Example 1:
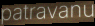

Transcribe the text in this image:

patravanu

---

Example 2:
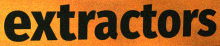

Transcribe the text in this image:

extractors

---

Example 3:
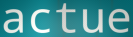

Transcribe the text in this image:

actue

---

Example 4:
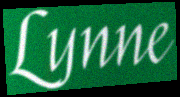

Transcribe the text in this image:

Lynne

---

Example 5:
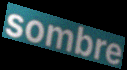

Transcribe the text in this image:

sombre